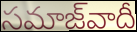
సమాజ్‌వాదీ